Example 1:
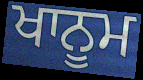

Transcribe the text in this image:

ਖਾਨੂਮ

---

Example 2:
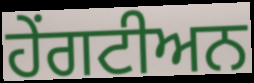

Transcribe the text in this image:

ਹੇਂਗਟੀਅਨ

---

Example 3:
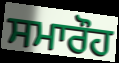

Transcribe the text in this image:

ਸਮਾਰੌਹ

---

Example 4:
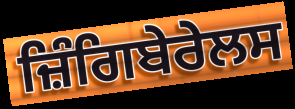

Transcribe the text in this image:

ਜ਼ਿੰਗਿਬੇਰੇਲਸ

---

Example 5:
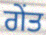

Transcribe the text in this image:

ਗੇਂਤ